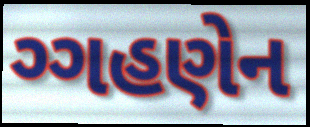
ગ્ગહણેન